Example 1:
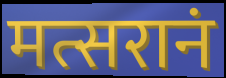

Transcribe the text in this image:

मत्सरानं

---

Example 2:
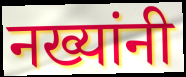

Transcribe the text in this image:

नख्यांनी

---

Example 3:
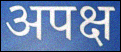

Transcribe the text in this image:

अपक्ष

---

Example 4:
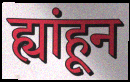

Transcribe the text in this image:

ह्यांहून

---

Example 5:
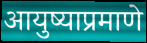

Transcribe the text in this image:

आयुष्याप्रमाणे